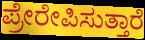
ಪ್ರೇರೇಪಿಸುತ್ತಾರೆ